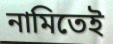
নামিতেই